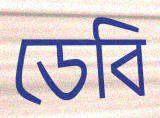
ডেবি